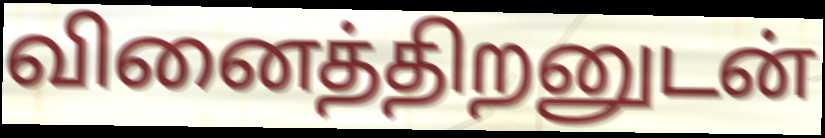
வினைத்திறனுடன்